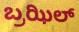
ಬ್ರಝಿಲ್